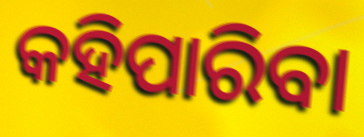
କହିପାରିବା